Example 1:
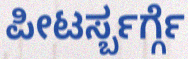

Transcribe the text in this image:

ಪೀಟರ್ಸ್ಬರ್ಗ್ಗೆ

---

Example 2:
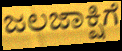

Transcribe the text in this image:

ಜಲಜಾಕ್ಷಿಗೆ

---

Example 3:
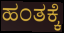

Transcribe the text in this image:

ಹಂತಕ್ಕೆ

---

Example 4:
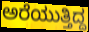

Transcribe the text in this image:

ಅರೆಯುತ್ತಿದ್ದ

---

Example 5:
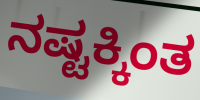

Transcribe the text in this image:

ನಷ್ಟಕ್ಕಿಂತ